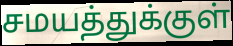
சமயத்துக்குள்